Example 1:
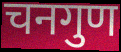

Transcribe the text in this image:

चनगुण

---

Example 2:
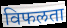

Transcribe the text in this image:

विफलता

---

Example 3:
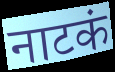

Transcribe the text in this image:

नाटकं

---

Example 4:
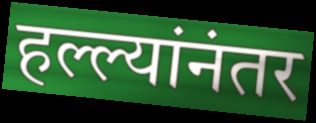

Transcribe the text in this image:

हल्ल्यांनंतर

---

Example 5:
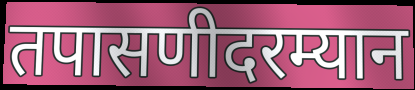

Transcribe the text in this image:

तपासणीदरम्यान